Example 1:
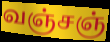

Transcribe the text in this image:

வஞ்சஞ்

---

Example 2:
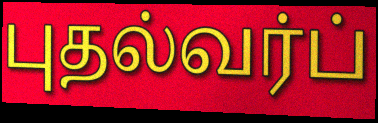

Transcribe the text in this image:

புதல்வர்ப்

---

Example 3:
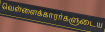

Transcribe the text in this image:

வெள்ளைக்காரர்களுடைய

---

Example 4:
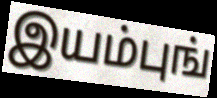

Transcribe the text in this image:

இயம்புங்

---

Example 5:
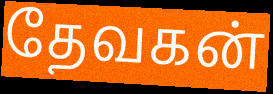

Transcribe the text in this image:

தேவகன்